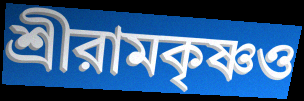
শ্রীরামকৃষ্ণও